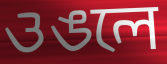
ওঙলে